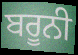
ਬਰੂਨੀ